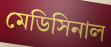
মেডিসিনাল